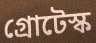
গ্রোটেস্ক